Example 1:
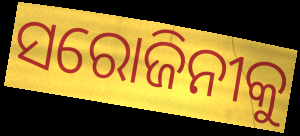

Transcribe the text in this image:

ସରୋଜିନୀକୁ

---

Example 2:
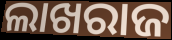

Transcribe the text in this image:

ଲାଖରାଜ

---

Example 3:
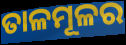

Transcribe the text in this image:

ତାଳମୂଳର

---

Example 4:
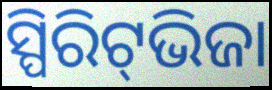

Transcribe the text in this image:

ସ୍ପିରିଟ୍‌ଭିଜା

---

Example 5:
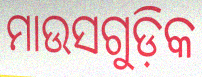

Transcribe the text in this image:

ମାଉସଗୁଡ଼ିକ